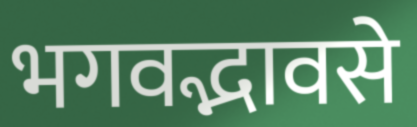
भगवद्भावसे